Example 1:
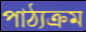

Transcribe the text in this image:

পাঠ্য়ক্ৰম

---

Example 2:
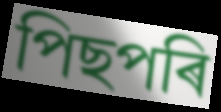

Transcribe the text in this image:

পিছপৰি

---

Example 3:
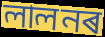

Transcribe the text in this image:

লালনৰ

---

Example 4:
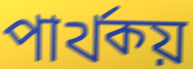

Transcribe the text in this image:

পাৰ্থক্য়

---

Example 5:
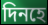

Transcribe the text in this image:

দিনহে